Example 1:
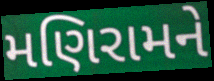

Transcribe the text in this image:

મણિરામને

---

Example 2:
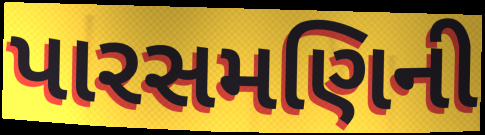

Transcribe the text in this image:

પારસમણિની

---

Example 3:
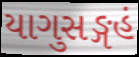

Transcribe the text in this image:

યાગુસઙ્ગહં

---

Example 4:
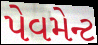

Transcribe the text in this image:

પેવમેન્ટ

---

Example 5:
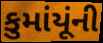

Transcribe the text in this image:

કુમાંયૂંની